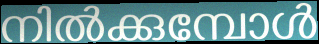
നിൽക്കുമ്പോൾ